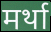
मर्था